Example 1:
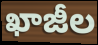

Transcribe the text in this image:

ఖాజీల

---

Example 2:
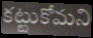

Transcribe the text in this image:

కట్టుకోమని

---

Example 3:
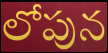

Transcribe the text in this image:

లోపున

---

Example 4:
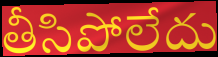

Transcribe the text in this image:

తీసిపోలేదు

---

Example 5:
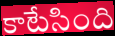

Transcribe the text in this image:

కాటేసింది